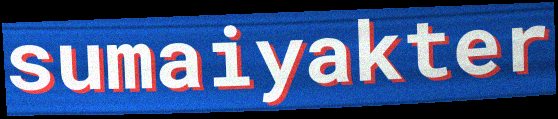
sumaiyakter